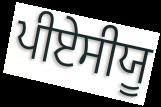
ਪੀਏਸੀਯੂ